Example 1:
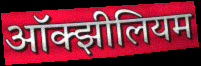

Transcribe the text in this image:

ऑक्झीलियम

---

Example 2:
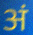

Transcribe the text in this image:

अं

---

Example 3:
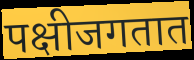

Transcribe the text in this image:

पक्षीजगतात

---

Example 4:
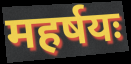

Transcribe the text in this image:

महर्षयः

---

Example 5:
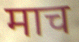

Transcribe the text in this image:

माच